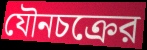
যৌনচক্রের